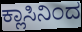
ಕ್ಲಾಸಿನಿಂದ